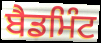
ਬੈਡਮਿੰਟ